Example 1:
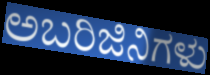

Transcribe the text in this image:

ಅಬರಿಜಿನಿಗಳು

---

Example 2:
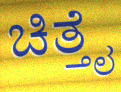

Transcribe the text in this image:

ಚಿತ್ತೈ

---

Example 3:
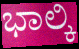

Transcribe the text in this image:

ಭಾಲ್ಕಿ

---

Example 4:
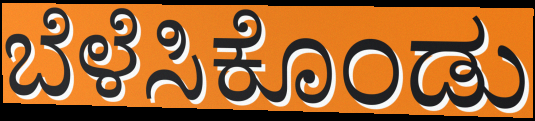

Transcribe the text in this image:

ಬೆಳೆಸಿಕೊಂಡು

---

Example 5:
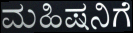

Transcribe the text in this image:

ಮಹಿಷನಿಗೆ